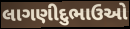
લાગણીદુભાઉઓ